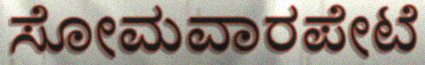
ಸೋಮವಾರಪೇಟೆ